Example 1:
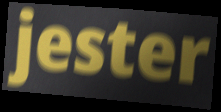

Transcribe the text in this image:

jester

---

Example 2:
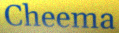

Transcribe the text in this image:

Cheema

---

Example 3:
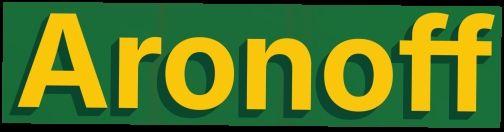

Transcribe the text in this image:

Aronoff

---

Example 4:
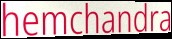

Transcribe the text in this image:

hemchandra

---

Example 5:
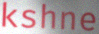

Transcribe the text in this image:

kshne